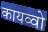
कायव्वो